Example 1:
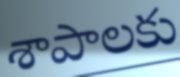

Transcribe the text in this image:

శాపాలకు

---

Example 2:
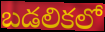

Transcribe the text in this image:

బడలికలో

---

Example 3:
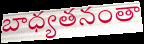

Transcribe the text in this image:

బాధ్యతనంతా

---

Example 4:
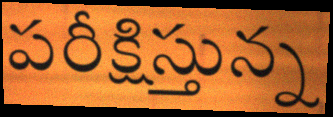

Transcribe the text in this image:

పరీక్షిస్తున్న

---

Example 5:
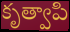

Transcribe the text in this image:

కృత్వాపి